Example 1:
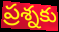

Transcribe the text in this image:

ప్రశ్నకు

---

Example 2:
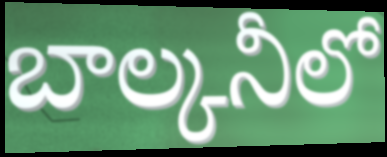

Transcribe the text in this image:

బాల్కనీలో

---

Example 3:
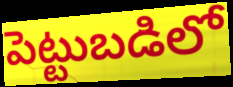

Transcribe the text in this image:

పెట్టుబడిలో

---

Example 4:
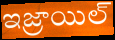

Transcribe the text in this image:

ఇజ్రాయిల్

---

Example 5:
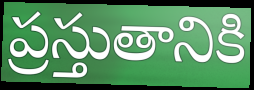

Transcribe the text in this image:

ప్రస్తుతానికి